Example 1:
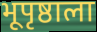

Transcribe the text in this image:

भूपृष्ठाला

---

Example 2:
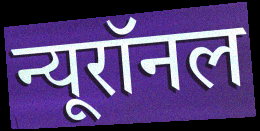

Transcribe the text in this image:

न्यूरॉनल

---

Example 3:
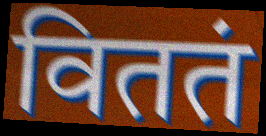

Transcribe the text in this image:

विततं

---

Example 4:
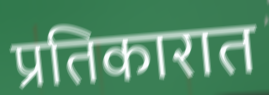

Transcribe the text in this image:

प्रतिकारात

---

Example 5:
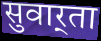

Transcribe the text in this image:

सुवार्ता